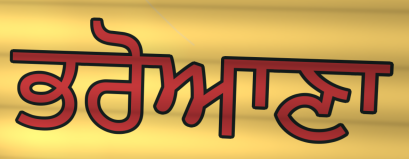
ਭਰੋਆਣਾ